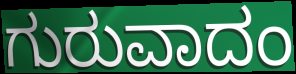
ಗುರುವಾದಂ